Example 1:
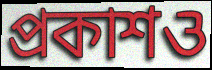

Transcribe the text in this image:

প্রকাশও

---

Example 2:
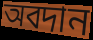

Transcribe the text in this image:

অবদান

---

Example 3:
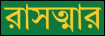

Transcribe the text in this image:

রাসত্মার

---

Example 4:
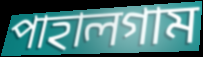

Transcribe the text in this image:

পাহালগাম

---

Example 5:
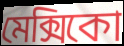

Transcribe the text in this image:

মেক্সিকো